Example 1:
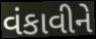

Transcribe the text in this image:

વંકાવીને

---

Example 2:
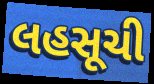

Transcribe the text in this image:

લહસૂચી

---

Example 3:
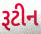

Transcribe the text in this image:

રૂટીન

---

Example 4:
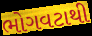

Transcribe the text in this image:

ભોગવટાથી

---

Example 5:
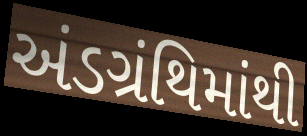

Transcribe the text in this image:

અંડગ્રંથિમાંથી